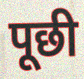
पूछी